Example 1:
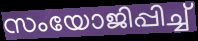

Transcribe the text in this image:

സംയോജിപ്പിച്ച്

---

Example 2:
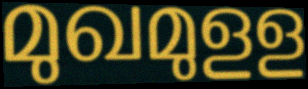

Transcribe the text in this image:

മുഖമുളള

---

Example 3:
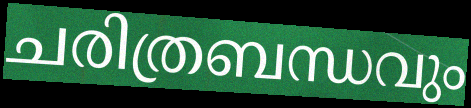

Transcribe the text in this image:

ചരിത്രബന്ധവും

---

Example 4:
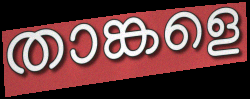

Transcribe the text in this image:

താങ്കളെ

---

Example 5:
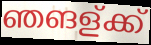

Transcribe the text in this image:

ഞങള്ക്ക്